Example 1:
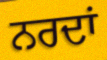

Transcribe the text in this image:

ਨਰਦਾਂ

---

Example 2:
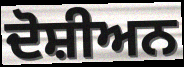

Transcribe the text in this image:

ਦੋਸ਼ੀਅਨ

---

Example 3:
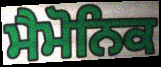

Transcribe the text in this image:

ਮੈਮੋਨਿਕ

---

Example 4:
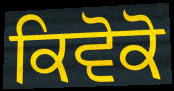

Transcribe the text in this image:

ਕਿਵੋਕੋ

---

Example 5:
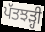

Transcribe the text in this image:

ਪੱਤਝੜ੍ਹੀ